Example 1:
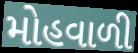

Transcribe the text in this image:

મોહવાળી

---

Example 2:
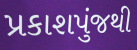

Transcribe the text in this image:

પ્રકાશપુંજથી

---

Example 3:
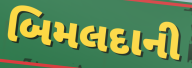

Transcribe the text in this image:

બિમલદાની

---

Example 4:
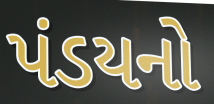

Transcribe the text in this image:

પંડયનો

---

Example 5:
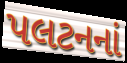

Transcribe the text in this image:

પલટનનાં